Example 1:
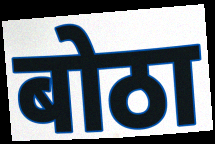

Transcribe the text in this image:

बोठा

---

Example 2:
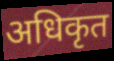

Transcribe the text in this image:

अधिकृत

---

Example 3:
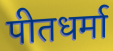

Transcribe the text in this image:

पीतधर्मा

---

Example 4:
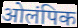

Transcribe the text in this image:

ओलंपिक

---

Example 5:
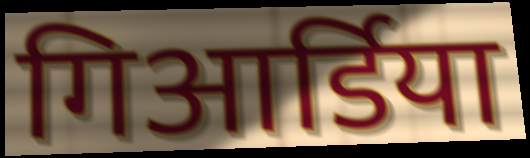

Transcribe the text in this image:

गिआर्डिया